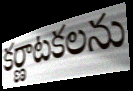
కర్ణాటకలను